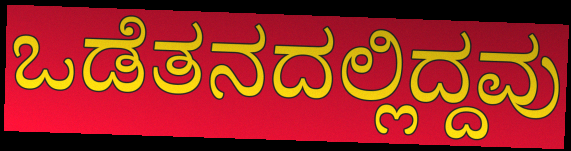
ಒಡೆತನದಲ್ಲಿದ್ದವು